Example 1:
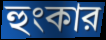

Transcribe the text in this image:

হুংকার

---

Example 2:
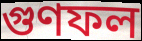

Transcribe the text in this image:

গুণফল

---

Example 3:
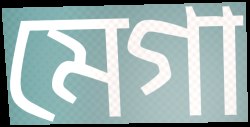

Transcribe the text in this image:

মেগা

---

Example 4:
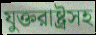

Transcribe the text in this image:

যুক্তরাষ্ট্রসহ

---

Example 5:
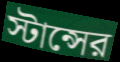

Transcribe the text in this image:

স্টান্সের